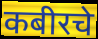
कबीरचे